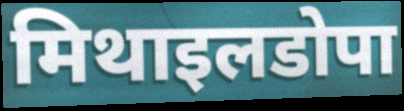
मिथाइलडोपा